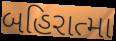
બહિરાત્મા